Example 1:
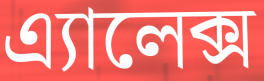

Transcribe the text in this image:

এ্যালেক্স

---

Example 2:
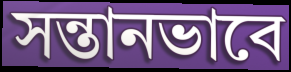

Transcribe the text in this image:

সন্তানভাবে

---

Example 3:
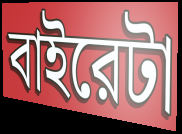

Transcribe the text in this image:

বাইরেটা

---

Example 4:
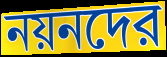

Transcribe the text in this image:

নয়নদের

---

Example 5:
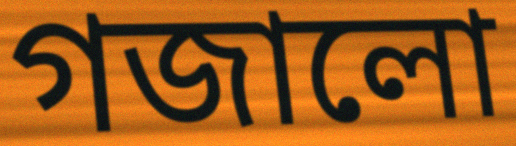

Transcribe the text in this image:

গজালো